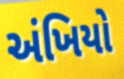
અંખિયો